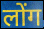
लोंग